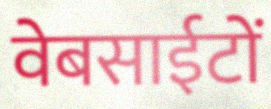
वेबसाईटों